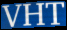
VHT